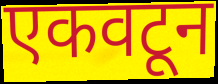
एकवटून